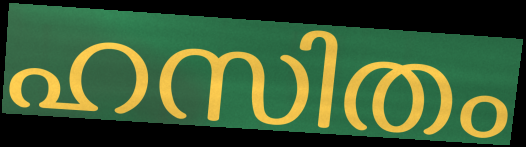
ഹസിതം